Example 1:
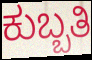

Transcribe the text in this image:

ಕುಬ್ಬತಿ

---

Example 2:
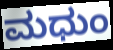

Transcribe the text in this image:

ಮಧುಂ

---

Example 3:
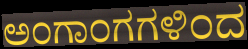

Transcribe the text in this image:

ಅಂಗಾಂಗಗಳಿಂದ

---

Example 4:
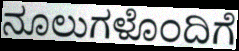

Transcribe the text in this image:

ನೂಲುಗಳೊಂದಿಗೆ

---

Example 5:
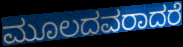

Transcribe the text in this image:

ಮೂಲದವರಾದರೆ